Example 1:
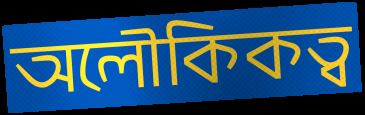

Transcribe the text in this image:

অলৌকিকত্ব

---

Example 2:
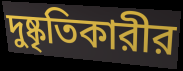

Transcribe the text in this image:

দুষ্কৃতিকারীর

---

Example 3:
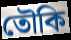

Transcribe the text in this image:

তৌকি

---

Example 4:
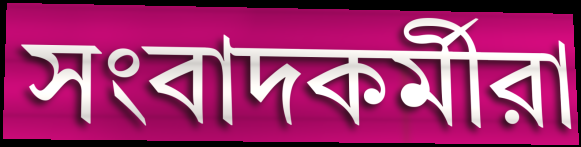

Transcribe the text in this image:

সংবাদকর্মীরা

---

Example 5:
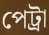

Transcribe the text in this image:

পেট্রা